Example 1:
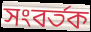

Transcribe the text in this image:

সংবর্তক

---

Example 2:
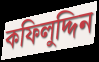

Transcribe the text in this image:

কফিলুদ্দিন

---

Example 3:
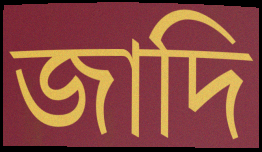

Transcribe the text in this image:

জাদি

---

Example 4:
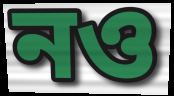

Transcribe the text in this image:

নও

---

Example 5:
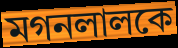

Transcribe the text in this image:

মগনলালকে